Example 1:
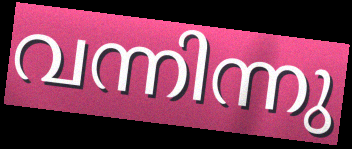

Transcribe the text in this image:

വന്നിന്നു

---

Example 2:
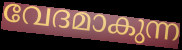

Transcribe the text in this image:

വേദമാകുന്ന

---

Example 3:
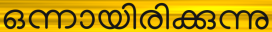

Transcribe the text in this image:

ഒന്നായിരിക്കുന്നു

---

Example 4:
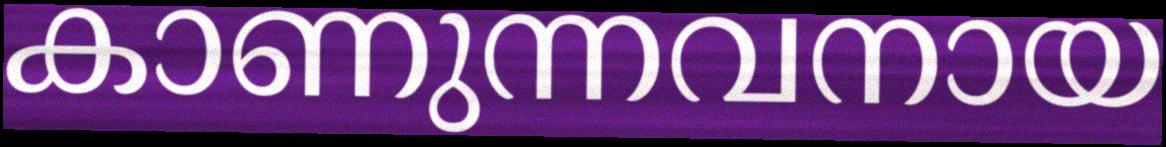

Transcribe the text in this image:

കാണുന്നവനായ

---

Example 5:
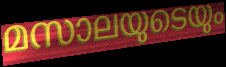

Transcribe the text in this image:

മസാലയുടെയും